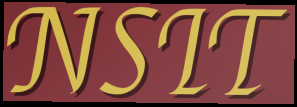
NSIT